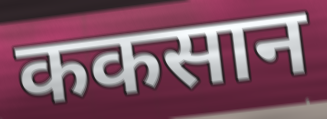
ककसान